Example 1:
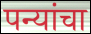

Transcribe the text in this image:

पन्यांचा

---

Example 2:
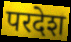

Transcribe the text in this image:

परदेश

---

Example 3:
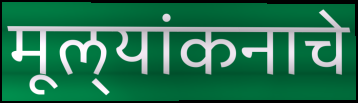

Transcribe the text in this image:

मूल्यांकनाचे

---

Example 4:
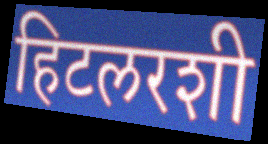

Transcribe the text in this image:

हिटलरशी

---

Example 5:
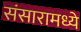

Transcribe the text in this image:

संसारामध्ये